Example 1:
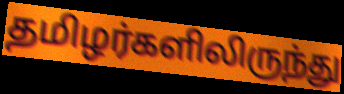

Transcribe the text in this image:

தமிழர்களிலிருந்து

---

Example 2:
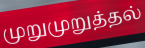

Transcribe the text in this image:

முறுமுறுத்தல்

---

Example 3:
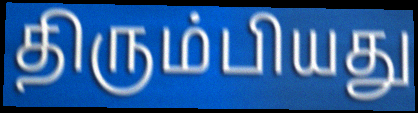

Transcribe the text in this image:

திரும்பியது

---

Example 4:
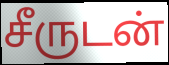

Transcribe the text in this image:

சீருடன்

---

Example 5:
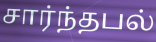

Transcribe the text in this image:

சார்ந்தபல்